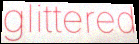
glittered